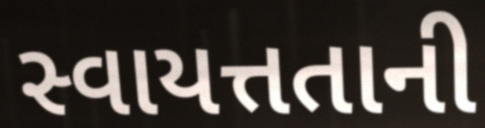
સ્વાયત્તતાની